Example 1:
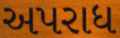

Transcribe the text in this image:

અપરાધ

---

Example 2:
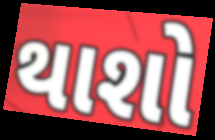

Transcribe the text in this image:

થાશો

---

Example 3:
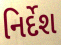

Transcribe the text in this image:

નિર્દેશ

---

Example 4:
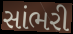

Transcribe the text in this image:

સાંભરી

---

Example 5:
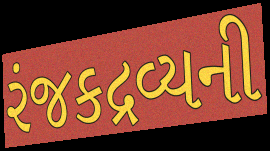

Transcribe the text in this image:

રંજકદ્રવ્યની